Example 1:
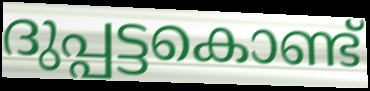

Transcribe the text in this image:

ദുപ്പട്ടകൊണ്ട്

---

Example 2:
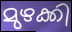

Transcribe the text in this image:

മുഴക്കി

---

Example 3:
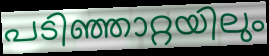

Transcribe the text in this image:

പടിഞ്ഞാറ്റയിലും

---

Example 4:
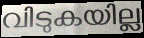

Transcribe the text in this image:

വിടുകയില്ല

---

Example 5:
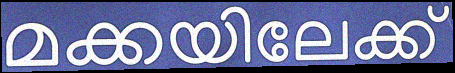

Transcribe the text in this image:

മക്കയിലേക്ക്